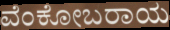
ವೆಂಕೋಬರಾಯ